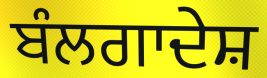
ਬੰਲਗਾਦੇਸ਼